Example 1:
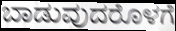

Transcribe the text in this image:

ಬಾಡುವುದರೊಳಗೆ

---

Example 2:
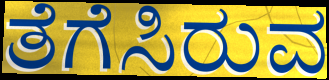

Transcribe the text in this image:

ತೆಗೆಸಿರುವ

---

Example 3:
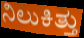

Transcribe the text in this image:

ನಿಲುಕಿತ್ತು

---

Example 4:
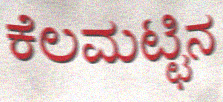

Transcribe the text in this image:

ಕೆಲಮಟ್ಟಿನ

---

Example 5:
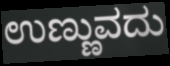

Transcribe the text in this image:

ಉಣ್ಣುವದು